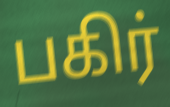
பகிர்